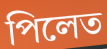
পিলেত